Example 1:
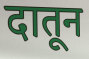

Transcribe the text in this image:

दातून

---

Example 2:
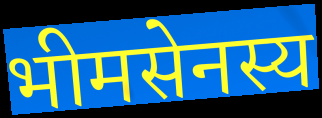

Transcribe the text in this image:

भीमसेनस्य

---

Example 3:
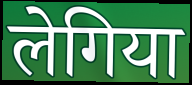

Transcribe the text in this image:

लेगिया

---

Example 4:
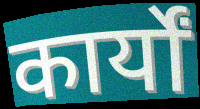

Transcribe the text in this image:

कार्यों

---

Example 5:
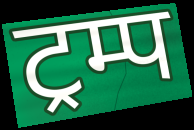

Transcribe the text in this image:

ट्रम्प